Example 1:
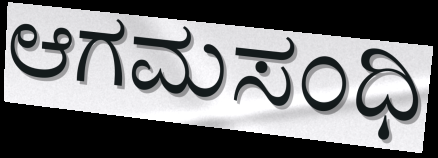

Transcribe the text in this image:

ಆಗಮಸಂಧಿ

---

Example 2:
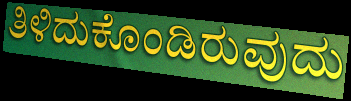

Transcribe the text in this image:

ತಿಳಿದುಕೊಂಡಿರುವುದು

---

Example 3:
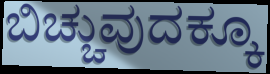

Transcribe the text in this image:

ಬಿಚ್ಚುವುದಕ್ಕೂ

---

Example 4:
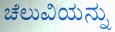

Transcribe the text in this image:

ಚೆಲುವಿಯನ್ನು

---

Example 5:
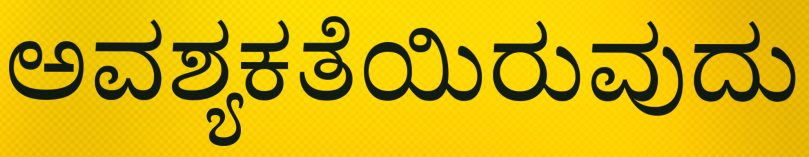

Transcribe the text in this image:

ಅವಶ್ಯಕತೆಯಿರುವುದು